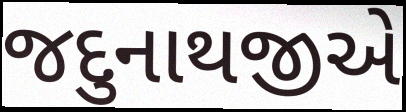
જદુનાથજીએ